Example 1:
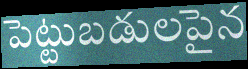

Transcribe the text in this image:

పెట్టుబడులపైన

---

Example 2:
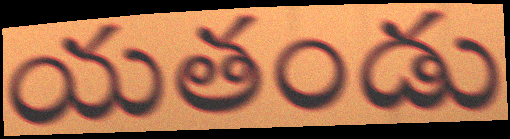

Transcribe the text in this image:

యతండు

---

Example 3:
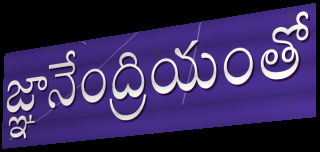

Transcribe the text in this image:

జ్ఞానేంద్రియంతో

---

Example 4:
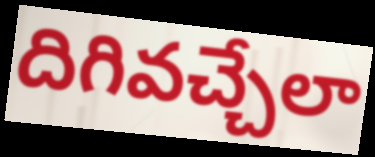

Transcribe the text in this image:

దిగివచ్చేలా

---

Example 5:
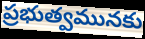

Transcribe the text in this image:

ప్రభుత్వమునకు